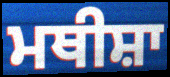
ਮਥੀਸ਼ਾ